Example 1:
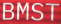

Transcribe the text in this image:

BMST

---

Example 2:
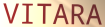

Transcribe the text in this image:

VITARA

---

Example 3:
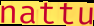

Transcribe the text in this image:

nattu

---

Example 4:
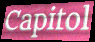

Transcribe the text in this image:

Capitol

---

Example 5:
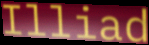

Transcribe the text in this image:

Illiad